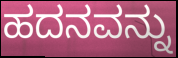
ಹದನವನ್ನು